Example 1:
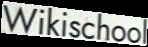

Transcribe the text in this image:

Wikischool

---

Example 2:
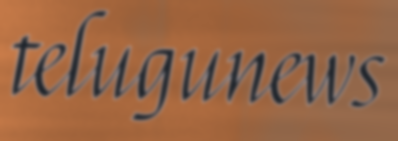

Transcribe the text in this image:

telugunews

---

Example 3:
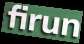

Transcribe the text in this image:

firun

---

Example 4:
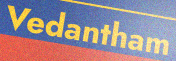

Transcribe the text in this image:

Vedantham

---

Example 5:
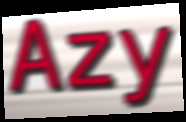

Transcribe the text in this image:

Azy